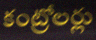
కంట్రోలర్లు